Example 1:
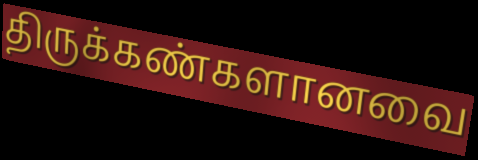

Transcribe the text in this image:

திருக்கண்களானவை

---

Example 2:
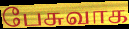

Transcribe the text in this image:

பேசுவாக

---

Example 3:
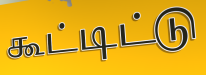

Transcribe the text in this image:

கூட்டிட்டு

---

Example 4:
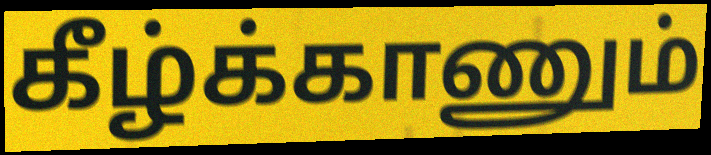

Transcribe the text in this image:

கீழ்க்காணும்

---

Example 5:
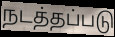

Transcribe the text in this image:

நடத்தப்படு